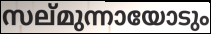
സല്മുന്നായോടും